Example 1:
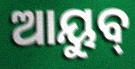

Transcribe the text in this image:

ଆୟୁବ୍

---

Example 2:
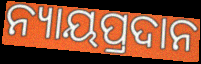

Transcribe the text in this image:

ନ୍ୟାୟପ୍ରଦାନ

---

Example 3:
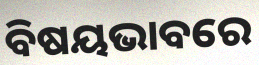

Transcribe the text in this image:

ବିଷୟଭାବରେ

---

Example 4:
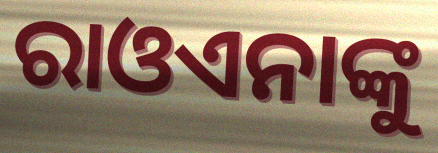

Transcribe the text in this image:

ରାଓଏନାଙ୍କୁ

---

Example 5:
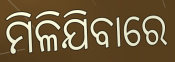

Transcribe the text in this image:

ମିଳିଯିବାରେ